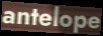
antelope